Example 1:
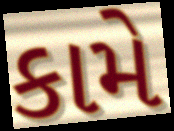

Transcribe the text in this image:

કામે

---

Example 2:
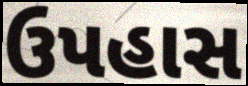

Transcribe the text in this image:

ઉપહાસ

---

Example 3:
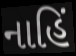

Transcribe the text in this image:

નાહિં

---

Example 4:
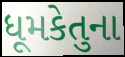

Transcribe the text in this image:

ધૂમકેતુના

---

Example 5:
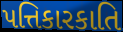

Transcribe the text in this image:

પત્તિકારકાતિ